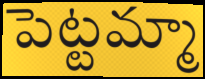
పెట్టమ్మా